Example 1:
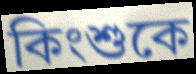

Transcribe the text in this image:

কিংশুকে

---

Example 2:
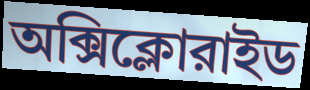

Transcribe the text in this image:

অক্সিক্লোরাইড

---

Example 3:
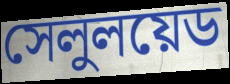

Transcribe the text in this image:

সেলুলয়েড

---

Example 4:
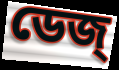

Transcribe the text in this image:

ডেজ্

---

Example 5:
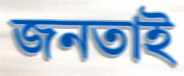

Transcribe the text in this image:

জনতাই